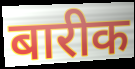
बारीक